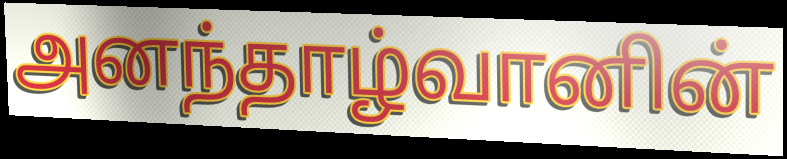
அனந்தாழ்வானின்